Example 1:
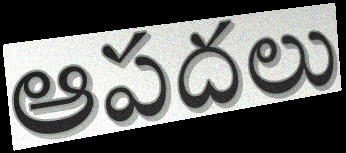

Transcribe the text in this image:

ఆపదలు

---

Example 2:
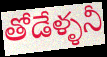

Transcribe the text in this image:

తోడేళ్ళనీ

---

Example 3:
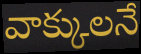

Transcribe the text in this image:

వాక్కులనే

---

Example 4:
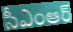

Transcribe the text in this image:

సీఎంఆర్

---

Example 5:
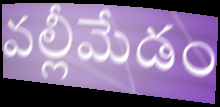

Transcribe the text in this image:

వల్లీమేడం